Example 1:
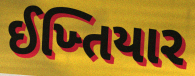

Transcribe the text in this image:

ઈખ્તિયાર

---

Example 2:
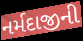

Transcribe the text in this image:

નર્મદાજીની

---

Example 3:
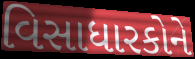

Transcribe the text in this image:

વિસાધારકોને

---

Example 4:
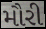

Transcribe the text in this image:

મૌરી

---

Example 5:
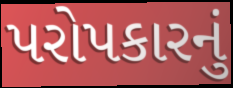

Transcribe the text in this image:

પરોપકારનું